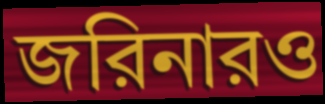
জরিনারও